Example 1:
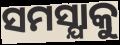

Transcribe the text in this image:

ସମସ୍ଯାକୁ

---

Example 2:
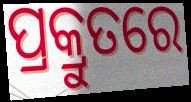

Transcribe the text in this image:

ପ୍ରକ୍ରୁତରେ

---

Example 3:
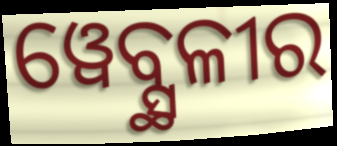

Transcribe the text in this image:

ୱେବ୍ସ୍ଥଳୀର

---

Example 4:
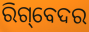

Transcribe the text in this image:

ରିଗ୍‌ବେଦର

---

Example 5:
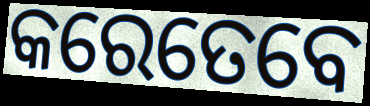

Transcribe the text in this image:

କରେତେବେ